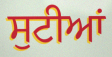
ਸੁਟੀਆਂ